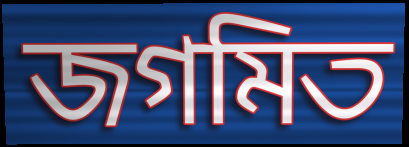
জগমিত